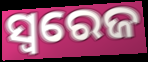
ସ୍ବରେଜ